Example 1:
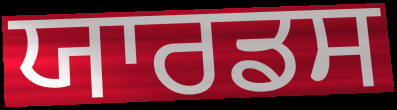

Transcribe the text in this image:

ਯਾਰਡਸ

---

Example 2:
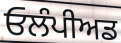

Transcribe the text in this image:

ਓਲੰਪੀਅਡ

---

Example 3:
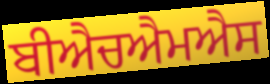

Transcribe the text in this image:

ਬੀਐਚਐਮਐਸ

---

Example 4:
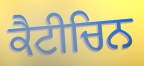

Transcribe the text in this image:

ਕੈਟੀਚਿਨ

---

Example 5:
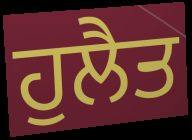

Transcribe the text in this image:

ਹੁਲੈਤ